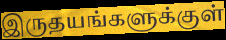
இருதயங்களுக்குள்